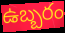
ఉబ్బరం